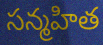
సన్మహిత